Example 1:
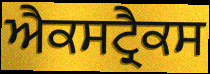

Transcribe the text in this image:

ਐਕਸਟ੍ਰੈਕਸ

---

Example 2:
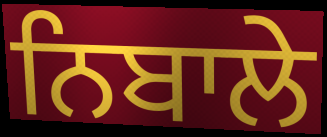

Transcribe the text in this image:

ਨਿਬਾਲੇ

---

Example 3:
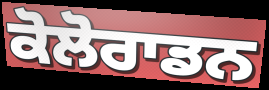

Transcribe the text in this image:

ਕੋਲੋਰਾਡਨ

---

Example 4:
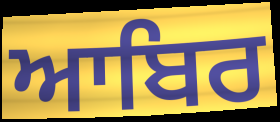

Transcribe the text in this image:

ਆਬਿਰ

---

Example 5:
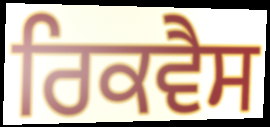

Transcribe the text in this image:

ਰਿਕਵੈਸ